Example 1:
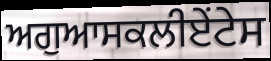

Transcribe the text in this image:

ਅਗੁਆਸਕਲੀਏਂਟੇਸ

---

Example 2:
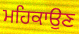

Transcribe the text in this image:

ਮਹਿਕਾਉਣ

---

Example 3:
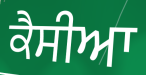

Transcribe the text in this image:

ਕੈਸੀਆ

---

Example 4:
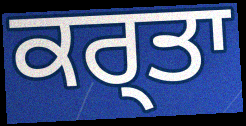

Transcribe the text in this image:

ਕਰ੍ਤਾ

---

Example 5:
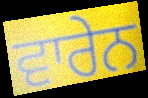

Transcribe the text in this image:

ਵਾਰੇਨ